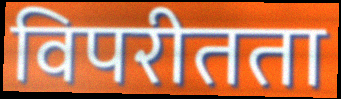
विपरीतता